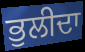
ਭੁਲੀਦਾ